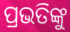
ପ୍ରଭତିଙ୍କୁ